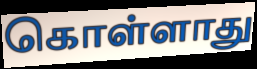
கொள்ளாது